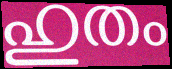
ഹുതം